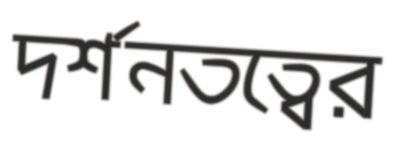
দর্শনতত্বের